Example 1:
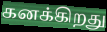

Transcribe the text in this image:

கனக்கிறது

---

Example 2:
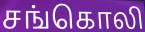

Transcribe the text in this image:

சங்கொலி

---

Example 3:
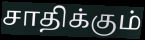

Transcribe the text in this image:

சாதிக்கும்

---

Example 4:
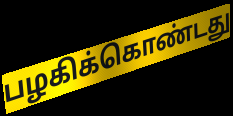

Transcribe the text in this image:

பழகிக்கொண்டது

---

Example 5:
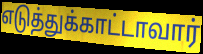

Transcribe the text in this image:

எடுத்துக்காட்டாவார்